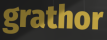
grathor